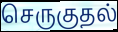
செருகுதல்